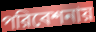
পরিবেশনায়